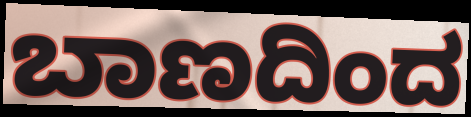
ಬಾಣದಿಂದ